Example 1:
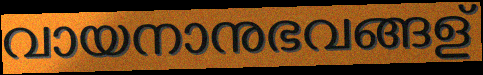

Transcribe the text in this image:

വായനാനുഭവങ്ങള്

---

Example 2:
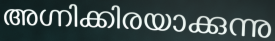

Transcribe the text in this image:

അഗ്നിക്കിരയാക്കുന്നു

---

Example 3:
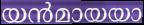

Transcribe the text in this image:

യൻമായയാ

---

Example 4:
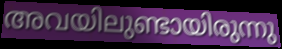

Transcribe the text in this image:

അവയിലുണ്ടായിരുന്നു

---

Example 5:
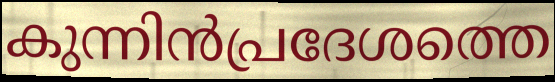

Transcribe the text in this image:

കുന്നിൻപ്രദേശത്തെ